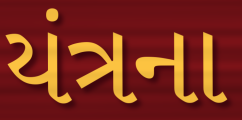
યંત્રના